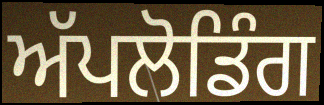
ਅੱਪਲੋਡਿੰਗ